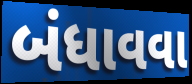
બંધાવવા